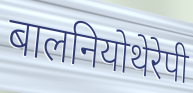
बालनियोथेरेपी